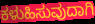
ಕಳುಹಿಸುವುದಾಗಿ